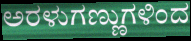
ಅರಳುಗಣ್ಣುಗಳಿಂದ